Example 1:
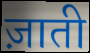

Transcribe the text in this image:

ज़ाती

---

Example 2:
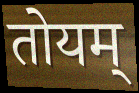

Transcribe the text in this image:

तोयम्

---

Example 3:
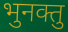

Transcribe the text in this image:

भुनक्तु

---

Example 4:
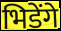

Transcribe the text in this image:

भिडेंगे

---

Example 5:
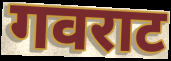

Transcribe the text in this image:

गवराट